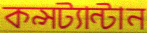
কন্সট্যান্টান